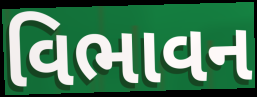
વિભાવન